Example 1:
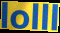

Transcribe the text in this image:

lolll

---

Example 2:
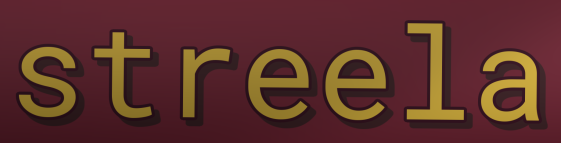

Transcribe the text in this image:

streela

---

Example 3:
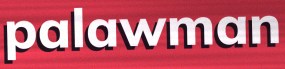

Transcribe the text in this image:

palawman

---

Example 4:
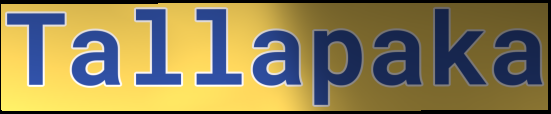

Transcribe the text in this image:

Tallapaka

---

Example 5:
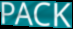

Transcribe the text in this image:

PACK